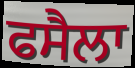
ਫਸੈਲਾ